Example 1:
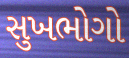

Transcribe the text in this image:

સુખભોગો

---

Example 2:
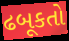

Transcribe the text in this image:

ઢબૂકતો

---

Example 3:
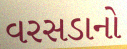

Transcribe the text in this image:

વરસડાનો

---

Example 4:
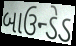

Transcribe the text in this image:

બાઉન્ડેડ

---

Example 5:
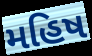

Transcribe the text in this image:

મહિષ